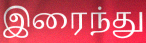
இரைந்து